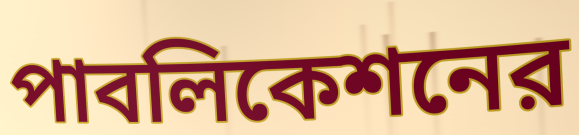
পাবলিকেশনের